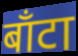
बाँटा